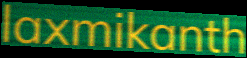
laxmikanth